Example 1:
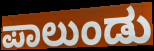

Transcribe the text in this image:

ಪಾಲುಂಡು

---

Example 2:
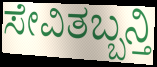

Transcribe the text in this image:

ಸೇವಿತಬ್ಬನ್ತಿ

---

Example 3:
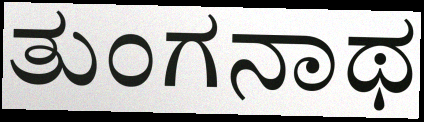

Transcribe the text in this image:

ತುಂಗನಾಥ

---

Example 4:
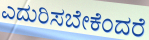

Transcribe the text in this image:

ಎದುರಿಸಬೇಕೆಂದರೆ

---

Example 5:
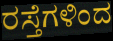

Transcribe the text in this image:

ರಸ್ತೆಗಳಿಂದ